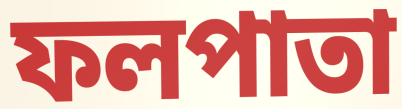
ফলপাতা